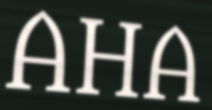
AHA